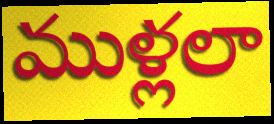
ముళ్లలా